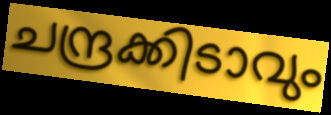
ചന്ദ്രക്കിടാവും